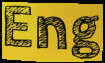
Eng